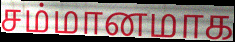
சம்மானமாக